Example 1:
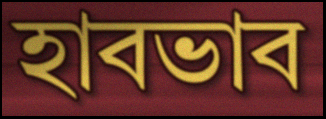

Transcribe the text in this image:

হাবভাব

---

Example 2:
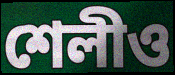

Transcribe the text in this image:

শেলীও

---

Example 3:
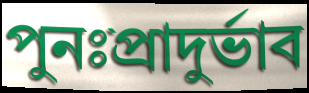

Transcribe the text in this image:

পুনঃপ্রাদুর্ভাব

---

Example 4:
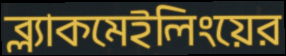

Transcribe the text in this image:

ব্ল্যাকমেইলিংয়ের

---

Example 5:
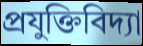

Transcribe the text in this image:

প্রযুক্তিবিদ্যা